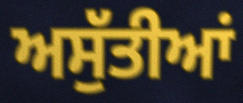
ਅਸੁੱਤੀਆਂ